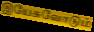
இயேசுவோடும்